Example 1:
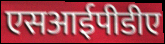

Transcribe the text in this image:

एसआईपीडीए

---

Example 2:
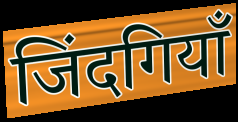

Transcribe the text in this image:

जिंदगियाँ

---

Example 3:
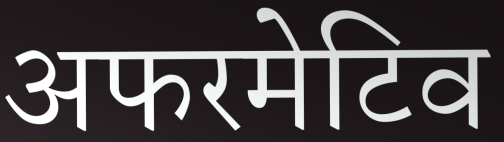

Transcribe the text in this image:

अफरमेटिव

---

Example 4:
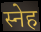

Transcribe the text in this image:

स्नेह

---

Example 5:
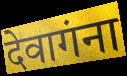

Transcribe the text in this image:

देवागंना